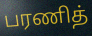
பரணித்